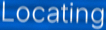
Locating